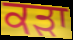
ਕੜਾ